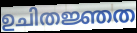
ഉചിതജ്ഞത